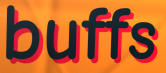
buffs